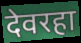
देवरहा